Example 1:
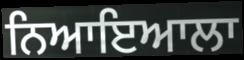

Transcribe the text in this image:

ਨਿਆਇਆਲਾ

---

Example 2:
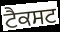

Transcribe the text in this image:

ਟੈਕਸਟ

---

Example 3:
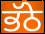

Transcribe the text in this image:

ਭੱਠੇ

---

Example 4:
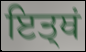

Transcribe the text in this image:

ਇਤ੍ਥਂ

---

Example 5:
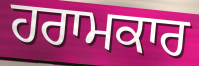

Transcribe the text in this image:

ਹਰਾਮਕਾਰ